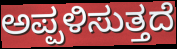
ಅಪ್ಪಳಿಸುತ್ತದೆ